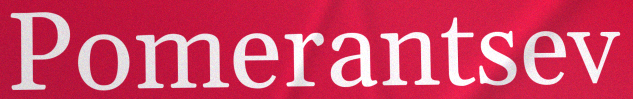
Pomerantsev